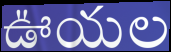
ఊయల